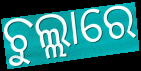
ଚୁଲ୍ଲାରେ